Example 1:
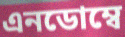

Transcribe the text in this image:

এনডোম্বে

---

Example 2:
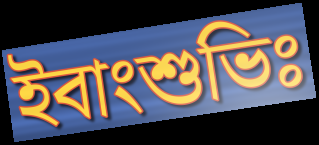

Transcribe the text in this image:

ইবাংশুভিঃ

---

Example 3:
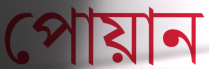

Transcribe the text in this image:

পোয়ান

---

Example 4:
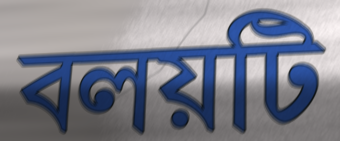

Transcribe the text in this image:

বলয়টি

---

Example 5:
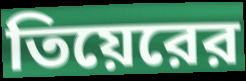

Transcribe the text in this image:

তিয়েরের